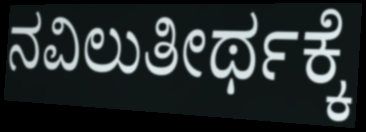
ನವಿಲುತೀರ್ಥಕ್ಕೆ